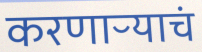
करणाऱ्याचं